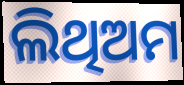
ଲିଥିଅମ